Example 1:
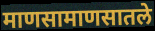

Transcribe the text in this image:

माणसामाणसातले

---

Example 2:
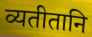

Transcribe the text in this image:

व्यतीतानि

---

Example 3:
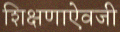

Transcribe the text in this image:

शिक्षणाऐवजी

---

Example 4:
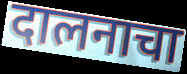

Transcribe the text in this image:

दालनाचा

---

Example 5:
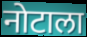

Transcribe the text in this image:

नोटाला